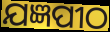
ଯଜ୍ଞପୀଠ